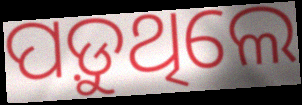
ପଡ଼ୁଥିଲେ